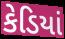
કેડિયાં